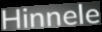
Hinnele